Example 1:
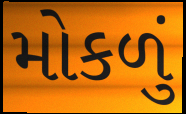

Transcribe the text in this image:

મોકળું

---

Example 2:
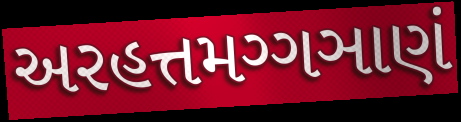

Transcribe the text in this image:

અરહત્તમગ્ગઞાણં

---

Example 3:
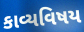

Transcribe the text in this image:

કાવ્યવિષય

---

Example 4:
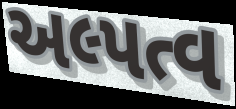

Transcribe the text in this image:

અલ્પત્વ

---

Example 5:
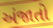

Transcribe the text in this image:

અંજાતો